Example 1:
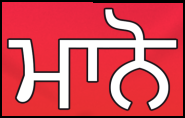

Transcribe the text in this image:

ਮਾਨੋ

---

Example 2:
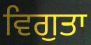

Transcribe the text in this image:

ਵਿਗੁਤਾ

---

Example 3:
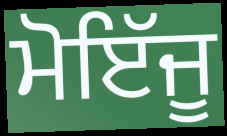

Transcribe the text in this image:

ਮੋਇੱਜੂ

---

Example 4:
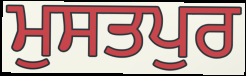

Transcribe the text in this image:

ਮੁਸਤਪੁਰ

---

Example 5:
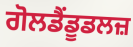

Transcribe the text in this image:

ਗੋਲਡੈਂਡੂਡਲਜ਼